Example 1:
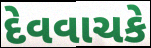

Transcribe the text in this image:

દેવવાચકે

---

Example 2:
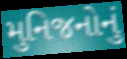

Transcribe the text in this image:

મુનિજનોનું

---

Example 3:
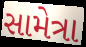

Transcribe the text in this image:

સામેત્રા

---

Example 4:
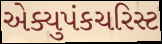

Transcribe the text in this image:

એક્યુપંકચરિસ્ટ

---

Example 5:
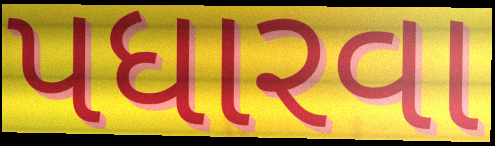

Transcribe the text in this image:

પધારવા